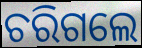
ଚରିଗଲେ